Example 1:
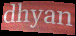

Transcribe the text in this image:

dhyan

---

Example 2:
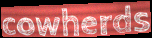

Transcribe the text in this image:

cowherds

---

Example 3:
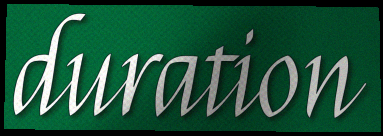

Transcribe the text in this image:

duration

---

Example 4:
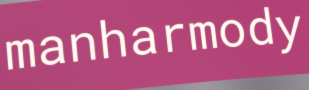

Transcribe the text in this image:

manharmody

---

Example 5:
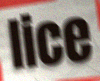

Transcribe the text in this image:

lice